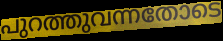
പുറത്തുവന്നതോടെ